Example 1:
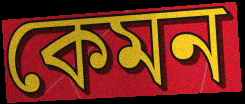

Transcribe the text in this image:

কেমন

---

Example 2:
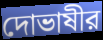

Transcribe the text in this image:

দোভাষীর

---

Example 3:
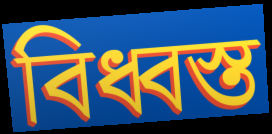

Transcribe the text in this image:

বিধ্বস্ত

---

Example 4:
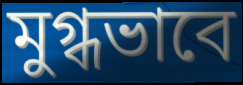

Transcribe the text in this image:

মুগ্ধভাবে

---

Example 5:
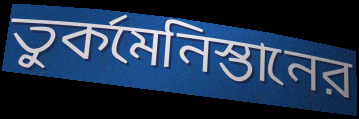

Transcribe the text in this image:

তুর্কমেনিস্তানের